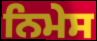
ਨਿਮੇਸ